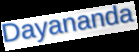
Dayananda